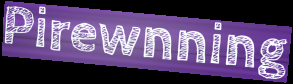
Pirewnning